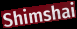
Shimshai